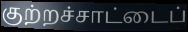
குற்றச்சாட்டைப்